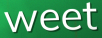
weet